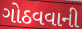
ગોઠવવાની